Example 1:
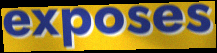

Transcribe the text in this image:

exposes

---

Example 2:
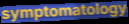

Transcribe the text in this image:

symptomatology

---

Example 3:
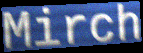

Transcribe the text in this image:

Mirch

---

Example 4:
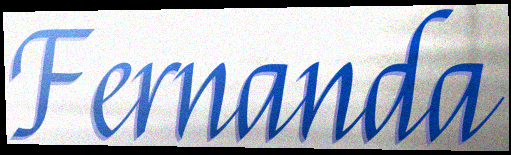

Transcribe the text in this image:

Fernanda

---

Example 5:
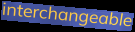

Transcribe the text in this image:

interchangeable